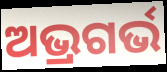
ଅଭ୍ରଗର୍ଭ